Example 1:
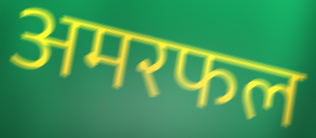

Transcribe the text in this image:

अमरफल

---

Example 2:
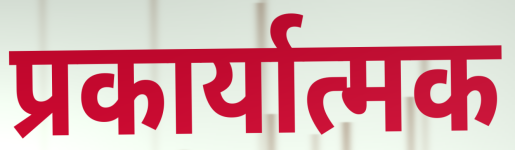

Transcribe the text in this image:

प्रकार्यात्मक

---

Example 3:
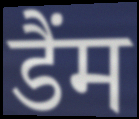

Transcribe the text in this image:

डैंम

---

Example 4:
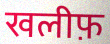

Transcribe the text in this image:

खलीफ़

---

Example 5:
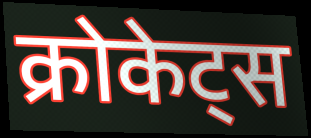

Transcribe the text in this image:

क्रोकेट्स